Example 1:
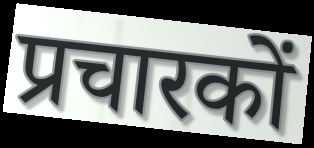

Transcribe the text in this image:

प्रचारकों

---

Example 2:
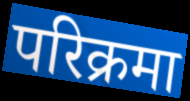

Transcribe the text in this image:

परिक्रमा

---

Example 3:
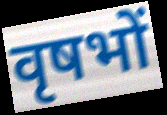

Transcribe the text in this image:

वृषभों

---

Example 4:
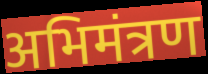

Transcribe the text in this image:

अभिमंत्रण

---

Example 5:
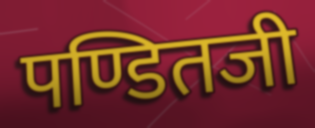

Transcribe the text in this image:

पण्डितजी